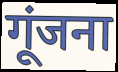
गूंजना